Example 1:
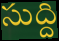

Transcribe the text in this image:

సుద్ది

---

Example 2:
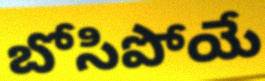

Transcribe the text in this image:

బోసిపోయే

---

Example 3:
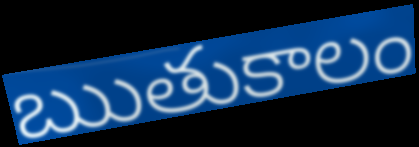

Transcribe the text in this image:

ఋతుకాలం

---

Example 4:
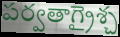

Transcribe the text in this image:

పర్వతాగ్రైశ్చ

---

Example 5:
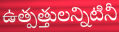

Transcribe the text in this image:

ఉత్పత్తులన్నిటినీ